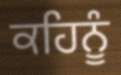
ਕਹਿਨੂੰ